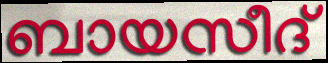
ബായസീദ്